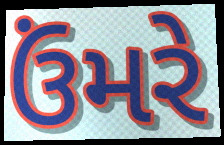
ઉંમરે